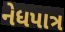
નેધપાત્ર